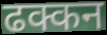
ढक्कन